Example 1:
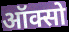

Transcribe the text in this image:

ऑक्सो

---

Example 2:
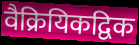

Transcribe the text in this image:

वैक्रियिकद्विक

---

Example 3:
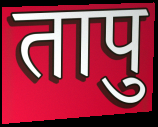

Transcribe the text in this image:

तापु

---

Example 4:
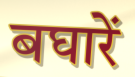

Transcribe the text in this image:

बघारें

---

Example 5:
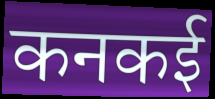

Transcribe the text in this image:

कनकई